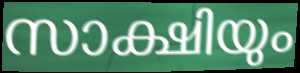
സാക്ഷിയും